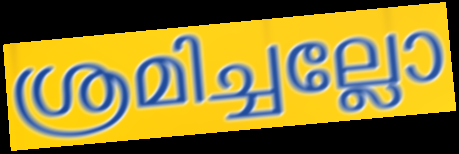
ശ്രമിച്ചല്ലോ